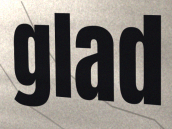
glad